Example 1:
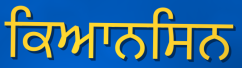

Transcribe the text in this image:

ਕਿਆਨਸਿਨ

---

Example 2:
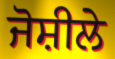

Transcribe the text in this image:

ਜੋਸ਼ੀਲੇ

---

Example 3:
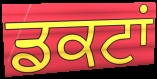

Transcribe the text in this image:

ਡਕਟਾਂ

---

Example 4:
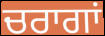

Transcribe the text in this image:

ਚਰਾਗਾਂ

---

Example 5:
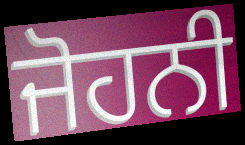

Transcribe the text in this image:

ਜੋਹਨੀ